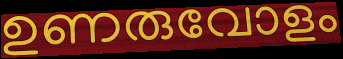
ഉണരുവോളം